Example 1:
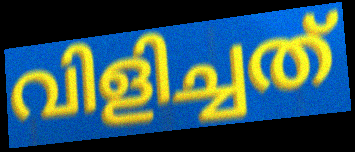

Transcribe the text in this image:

വിളിച്ചത്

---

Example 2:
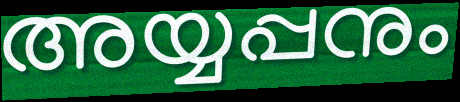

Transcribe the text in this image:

അയ്യപ്പനും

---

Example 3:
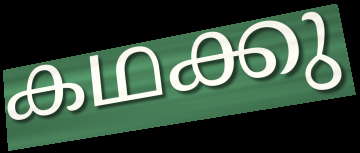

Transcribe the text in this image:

കഥക്കു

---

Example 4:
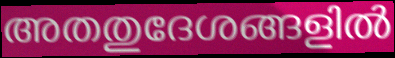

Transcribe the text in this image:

അതതുദേശങ്ങളിൽ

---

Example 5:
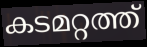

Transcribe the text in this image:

കടമറ്റത്ത്